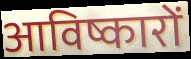
आविष्‍कारों